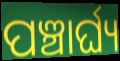
ପଞ୍ଚାର୍ଘ୍ୟ